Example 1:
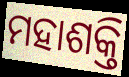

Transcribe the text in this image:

ମହାଶକ୍ତି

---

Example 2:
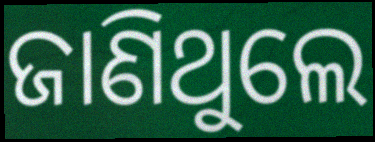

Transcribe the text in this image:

ଜାଣିଥୁଲେ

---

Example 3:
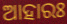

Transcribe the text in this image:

ଆହାରଃ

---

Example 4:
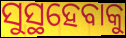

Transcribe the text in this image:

ସୁସ୍ଥହେବାକୁ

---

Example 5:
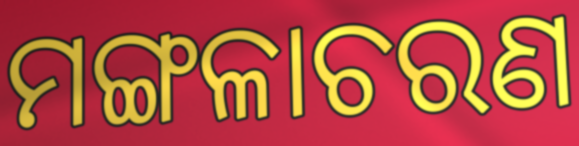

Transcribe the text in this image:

ମଙ୍ଗଳାଚରଣ